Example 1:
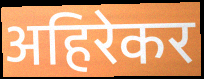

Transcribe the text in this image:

अहिरेकर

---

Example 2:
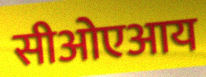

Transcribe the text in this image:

सीओएआय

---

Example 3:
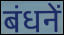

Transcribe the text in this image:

बंधनें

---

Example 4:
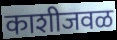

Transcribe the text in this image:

काशीजवळ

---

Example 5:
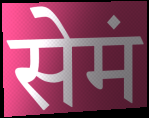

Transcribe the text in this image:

सेमं